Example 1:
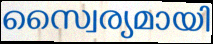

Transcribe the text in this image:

സ്വൈര്യമായി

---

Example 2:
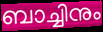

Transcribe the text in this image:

ബാച്ചിനും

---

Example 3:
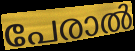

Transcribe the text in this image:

പേരാൽ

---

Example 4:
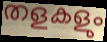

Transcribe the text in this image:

തളകളും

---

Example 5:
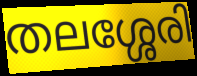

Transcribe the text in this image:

തലശ്ശേരി